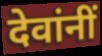
देवांनीं